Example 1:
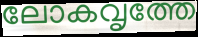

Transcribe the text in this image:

ലോകവൃത്തേ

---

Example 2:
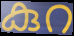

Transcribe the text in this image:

കുറ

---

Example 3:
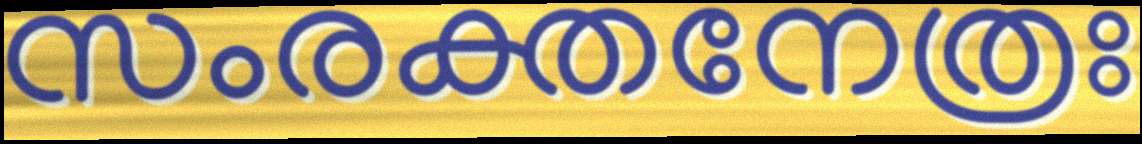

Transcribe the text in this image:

സംരക്തനേത്രഃ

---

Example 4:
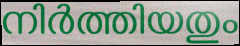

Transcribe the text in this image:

നിർത്തിയതും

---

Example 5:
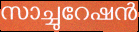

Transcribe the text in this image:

സാച്ചുറേഷൻ